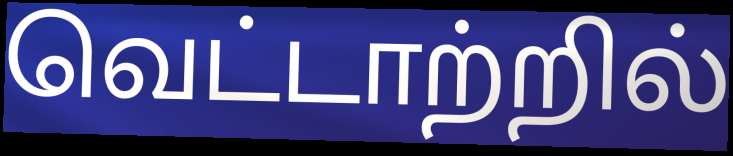
வெட்டாற்றில்